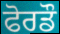
ਫੋਰਡੌ